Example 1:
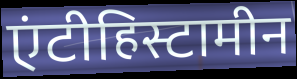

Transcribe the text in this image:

एंटीहिस्टामीन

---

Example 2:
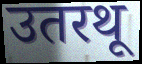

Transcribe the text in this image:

उतरथू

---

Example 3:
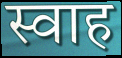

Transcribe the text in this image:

स्वाह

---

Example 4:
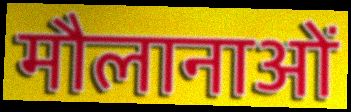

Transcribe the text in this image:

मौलानाओं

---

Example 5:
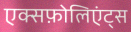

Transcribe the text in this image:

एक्सफ़ोलिएंट्स